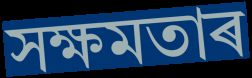
সক্ষমতাৰ